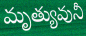
మృత్యువునీ